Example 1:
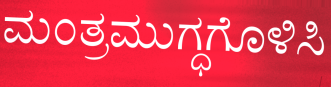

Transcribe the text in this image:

ಮಂತ್ರಮುಗ್ಧಗೊಳಿಸಿ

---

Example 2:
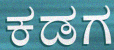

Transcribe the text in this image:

ಕಡಗ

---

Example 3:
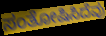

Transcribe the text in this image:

ಸಂತೋಷಿಸಿದೆವು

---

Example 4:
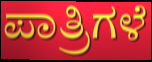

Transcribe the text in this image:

ಪಾತ್ರಿಗಳೆ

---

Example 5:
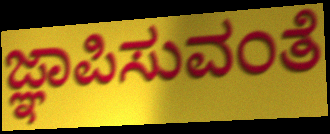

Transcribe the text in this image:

ಜ್ಞಾಪಿಸುವಂತೆ